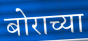
बोराच्या